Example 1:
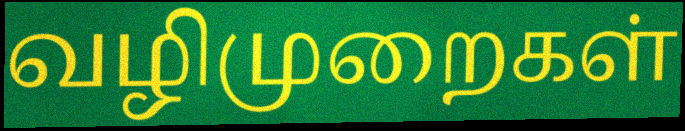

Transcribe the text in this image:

வழிமுறைகள்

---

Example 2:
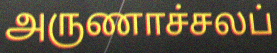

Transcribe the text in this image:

அருணாச்சலப்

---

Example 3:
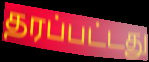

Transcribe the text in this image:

தரப்பட்டது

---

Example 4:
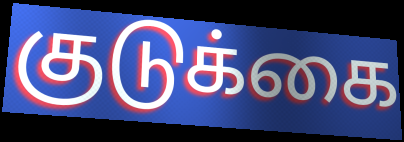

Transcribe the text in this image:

குடுக்கை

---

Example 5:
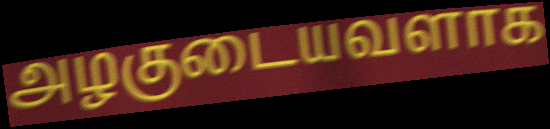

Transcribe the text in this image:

அழகுடையவளாக